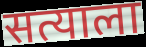
सत्याला